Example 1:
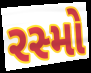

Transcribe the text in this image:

રસ્મો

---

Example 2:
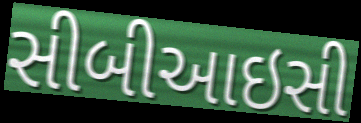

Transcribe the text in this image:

સીબીઆઇસી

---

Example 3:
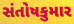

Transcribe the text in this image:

સંતોષકુમાર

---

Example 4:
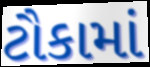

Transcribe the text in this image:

ટૌકામાં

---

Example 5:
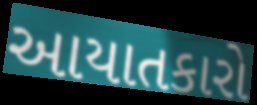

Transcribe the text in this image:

આયાતકારો